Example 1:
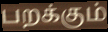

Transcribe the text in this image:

பறக்கும்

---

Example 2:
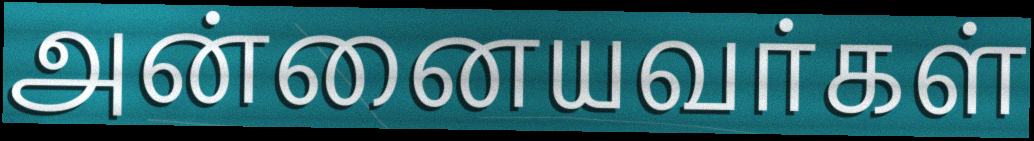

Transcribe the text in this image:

அன்னையவர்கள்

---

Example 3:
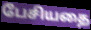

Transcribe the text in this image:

பேசியதை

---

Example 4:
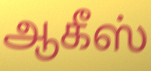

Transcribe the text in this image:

ஆகீஸ்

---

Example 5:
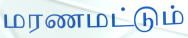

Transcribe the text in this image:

மரணமட்டும்